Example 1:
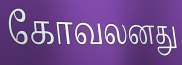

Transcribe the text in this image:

கோவலனது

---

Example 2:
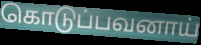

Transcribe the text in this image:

கொடுப்பவனாய்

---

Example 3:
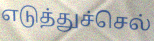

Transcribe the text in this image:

எடுத்துச்செல்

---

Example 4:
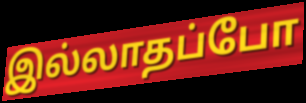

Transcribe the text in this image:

இல்லாதப்போ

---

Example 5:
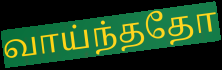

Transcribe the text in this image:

வாய்ந்ததோ